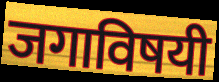
जगाविषयी